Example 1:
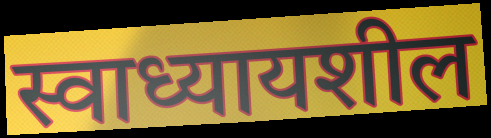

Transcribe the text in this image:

स्वाध्यायशील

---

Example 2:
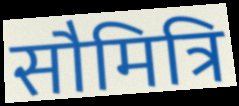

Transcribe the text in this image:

सौमित्रि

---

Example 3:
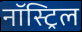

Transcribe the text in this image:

नॉस्ट्रिल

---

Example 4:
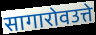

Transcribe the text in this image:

सागारोवउत्ते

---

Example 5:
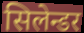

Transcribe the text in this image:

सिलेन्डर